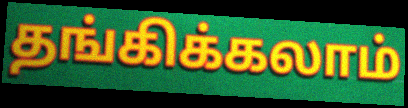
தங்கிக்கலாம்